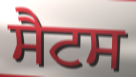
ਸੈਟਸ